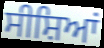
ਸੀਸ਼ਿਆਂ